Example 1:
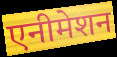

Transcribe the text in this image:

एनीमेशन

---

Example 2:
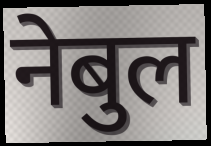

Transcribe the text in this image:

नेबुल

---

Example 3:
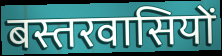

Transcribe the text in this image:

बस्तरवासियों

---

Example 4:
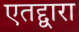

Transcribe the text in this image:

एतद्द्वारा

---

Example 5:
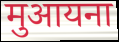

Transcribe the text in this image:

मुआयना